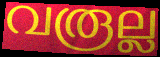
വരൂല്ല